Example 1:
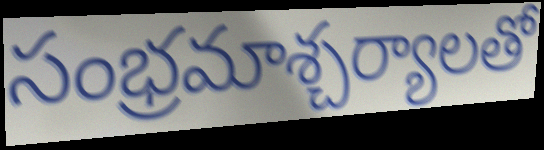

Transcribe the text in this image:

సంభ్రమాశ్చర్యాలతో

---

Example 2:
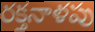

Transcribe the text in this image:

రక్తనాళపు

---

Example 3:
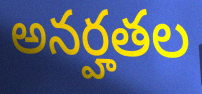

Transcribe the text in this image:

అనర్హతల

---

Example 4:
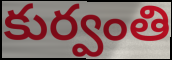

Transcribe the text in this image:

కుర్వంతి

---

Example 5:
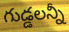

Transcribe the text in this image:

గుడ్డలన్నీ